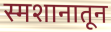
स्मशानातून